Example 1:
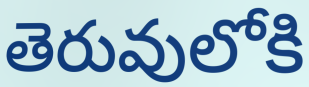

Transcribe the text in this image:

తెరువులోకి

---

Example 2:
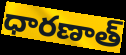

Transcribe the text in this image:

ధారణాత్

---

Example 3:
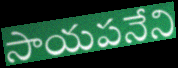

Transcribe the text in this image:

సాయపనేని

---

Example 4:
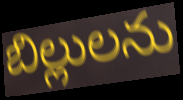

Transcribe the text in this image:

బిల్లులను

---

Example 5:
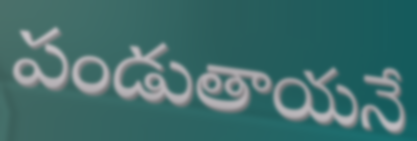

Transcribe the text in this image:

పండుతాయనే